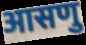
आसणु